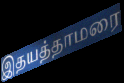
இதயத்தாமரை